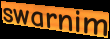
swarnim